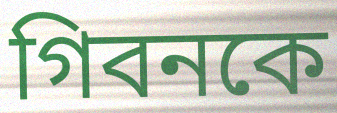
গিবনকে